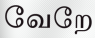
வேறே